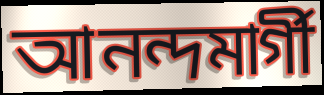
আনন্দমার্গী